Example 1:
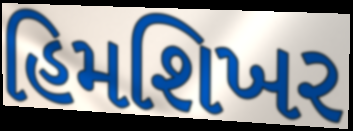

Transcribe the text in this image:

હિમશિખર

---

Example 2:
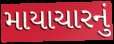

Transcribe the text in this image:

માયાચારનું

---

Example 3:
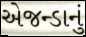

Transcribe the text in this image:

એજન્ડાનું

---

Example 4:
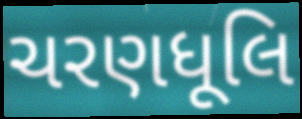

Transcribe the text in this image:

ચરણધૂલિ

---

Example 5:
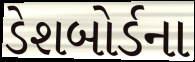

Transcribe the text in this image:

ડેશબોર્ડના